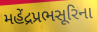
મહેંદ્રપ્રભસૂરિના